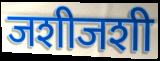
जशीजशी